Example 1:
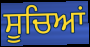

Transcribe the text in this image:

ਸੂਚਿਆਂ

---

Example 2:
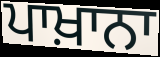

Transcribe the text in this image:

ਪਾਖ਼ਾਨਾ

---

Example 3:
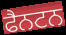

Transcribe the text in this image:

ਫੈਨਟਨ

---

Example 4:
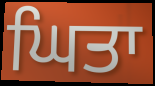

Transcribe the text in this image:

ਘਿਤਾ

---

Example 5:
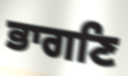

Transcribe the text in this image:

ਭਾਗਣਿ